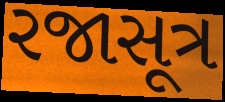
રજાસૂત્ર